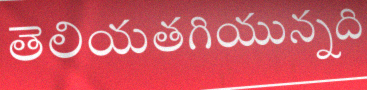
తెలియతగియున్నది